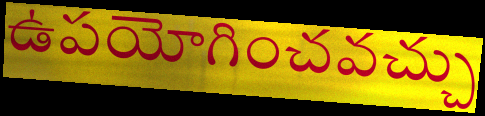
ఉపయోగించవచ్చు